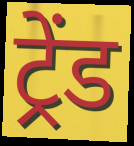
ट्रेंड